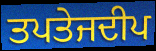
ਤਪਤੇਜਦੀਪ